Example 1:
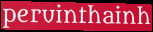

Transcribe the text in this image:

peruinthainh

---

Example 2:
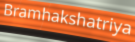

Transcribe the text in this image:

Bramhakshatriya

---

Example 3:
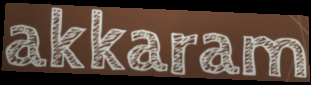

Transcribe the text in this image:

akkaram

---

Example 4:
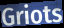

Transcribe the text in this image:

Griots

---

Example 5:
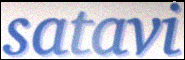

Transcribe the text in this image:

satavi